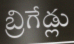
బ్రిగేడ్లు